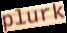
plurk